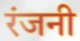
रंजनी